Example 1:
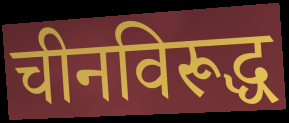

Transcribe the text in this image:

चीनविरूद्ध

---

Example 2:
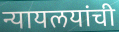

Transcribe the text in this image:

न्यायलयांची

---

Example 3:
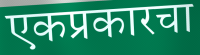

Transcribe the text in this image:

एकप्रकारचा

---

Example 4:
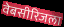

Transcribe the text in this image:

वेबसीरिजला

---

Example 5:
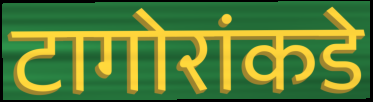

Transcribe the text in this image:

टागोरांकडे